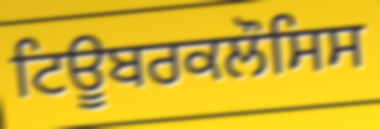
ਟਿਊਬਰਕਲੌਸਿਸ